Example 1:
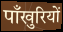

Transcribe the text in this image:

पाँखुरियों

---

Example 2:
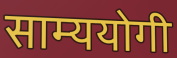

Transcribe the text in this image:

साम्ययोगी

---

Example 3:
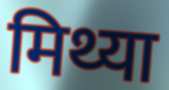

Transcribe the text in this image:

मिथ्या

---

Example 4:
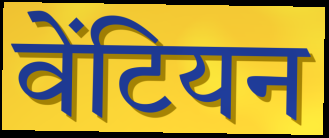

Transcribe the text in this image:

वेंटियन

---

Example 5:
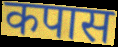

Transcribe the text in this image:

कपास